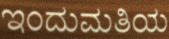
ಇಂದುಮತಿಯ